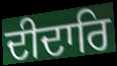
ਦੀਦਾਰਿ